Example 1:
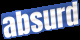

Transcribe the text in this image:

absurd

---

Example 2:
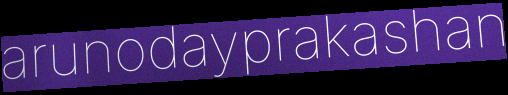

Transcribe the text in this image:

arunodayprakashan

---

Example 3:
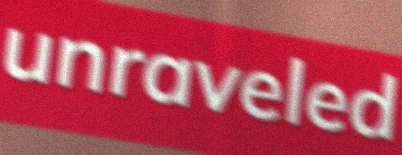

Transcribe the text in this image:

unraveled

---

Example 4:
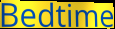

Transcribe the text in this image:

Bedtime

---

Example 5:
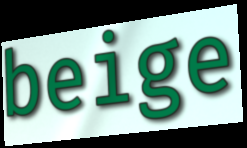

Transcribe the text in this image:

beige